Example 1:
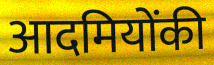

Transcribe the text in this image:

आदमियोंकी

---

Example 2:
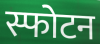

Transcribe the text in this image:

स्फोटन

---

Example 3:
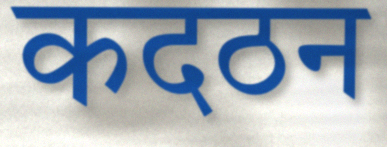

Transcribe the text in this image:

कदठन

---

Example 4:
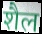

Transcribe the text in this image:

शैल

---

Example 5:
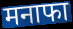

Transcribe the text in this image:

मनाफा